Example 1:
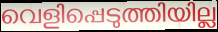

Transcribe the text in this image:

വെളിപ്പെടുത്തിയില്ല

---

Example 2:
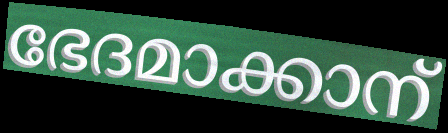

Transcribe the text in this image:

ഭേദമാക്കാന്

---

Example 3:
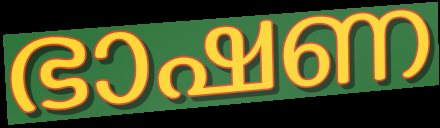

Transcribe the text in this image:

ഭാഷണ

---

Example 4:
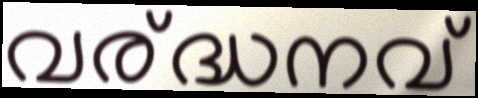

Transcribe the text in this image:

വര്ദ്ധനവ്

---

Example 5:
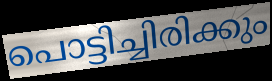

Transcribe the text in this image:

പൊട്ടിച്ചിരിക്കും